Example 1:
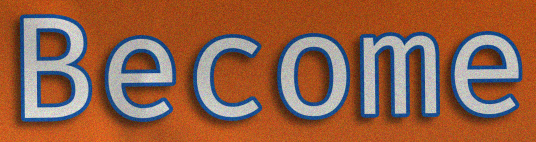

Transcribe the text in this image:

Become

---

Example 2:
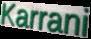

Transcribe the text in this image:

Karrani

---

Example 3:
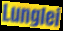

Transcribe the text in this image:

Lunglei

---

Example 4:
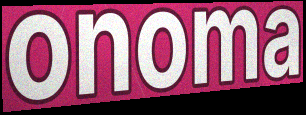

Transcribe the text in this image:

onoma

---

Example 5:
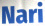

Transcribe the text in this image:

Nari